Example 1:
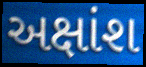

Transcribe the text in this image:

અક્ષાંશ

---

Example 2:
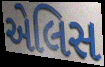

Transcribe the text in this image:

એલિસ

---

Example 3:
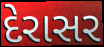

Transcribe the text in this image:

દેરાસર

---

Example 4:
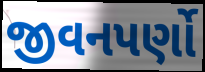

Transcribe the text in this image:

જીવનપર્ણો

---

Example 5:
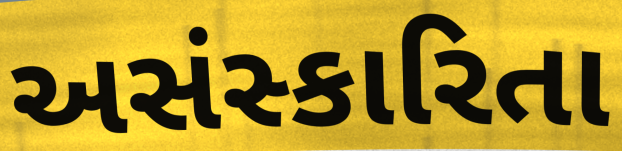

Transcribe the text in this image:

અસંસ્કારિતા